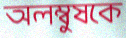
অলম্বুষকে